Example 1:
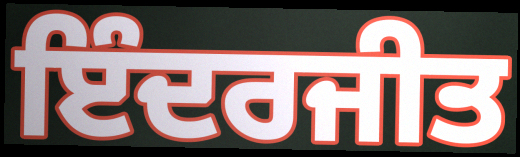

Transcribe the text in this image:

ਇੰਦਰਜੀਤ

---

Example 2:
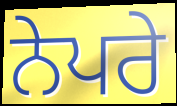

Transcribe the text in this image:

ਨੇਪਰੇ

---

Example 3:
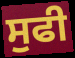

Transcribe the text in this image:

ਸੁਫੀ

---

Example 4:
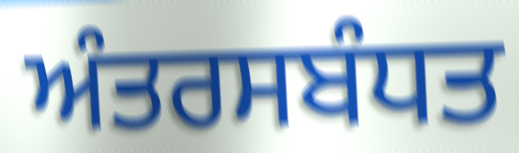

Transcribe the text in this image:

ਅੰਤਰਸਬੰਧਤ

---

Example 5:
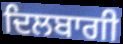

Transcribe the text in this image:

ਦਿਲਬਾਗੀ